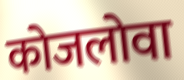
कोजलोवा